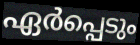
ഏർപ്പെടും